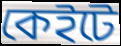
কেইটে